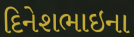
દિનેશભાઇના